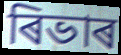
ৰিভাৰ